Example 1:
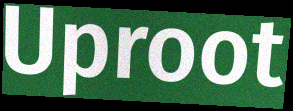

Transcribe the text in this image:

Uproot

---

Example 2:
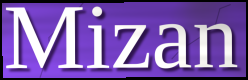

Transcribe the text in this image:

Mizan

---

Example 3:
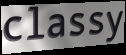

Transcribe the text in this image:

classy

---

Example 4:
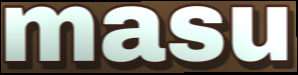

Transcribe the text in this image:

masu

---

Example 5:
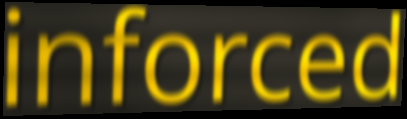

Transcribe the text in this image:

inforced